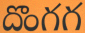
దొంగగ